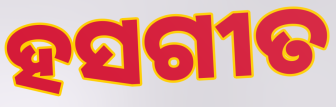
ହସଗୀତ